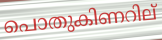
പൊതുകിണറില്